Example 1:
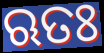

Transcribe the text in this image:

ଋତଃ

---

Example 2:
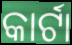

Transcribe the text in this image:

କାର୍ଟା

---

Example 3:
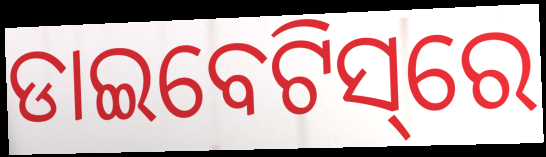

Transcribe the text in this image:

ଡାଇବେଟିସ୍‌ରେ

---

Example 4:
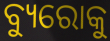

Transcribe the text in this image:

ବ୍ୟୁରୋକୁ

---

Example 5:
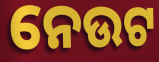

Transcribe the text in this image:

ନେଉଟ